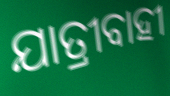
ଯାତ୍ରୀବାହୀ